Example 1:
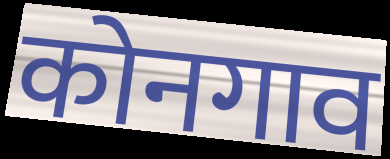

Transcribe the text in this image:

कोनगाव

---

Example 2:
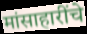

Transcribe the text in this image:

मांसाहारींचे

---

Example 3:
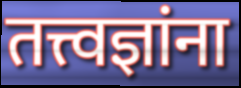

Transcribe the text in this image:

तत्त्वज्ञांना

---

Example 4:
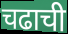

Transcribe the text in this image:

चढाची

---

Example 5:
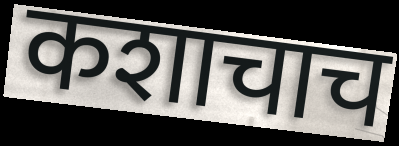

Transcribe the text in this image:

कशाचाच